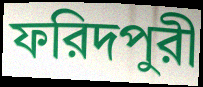
ফরিদপুরী